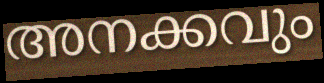
അനക്കവും